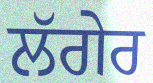
ਲੱਗੇਰ